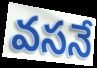
వసనే